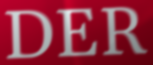
DER